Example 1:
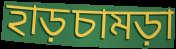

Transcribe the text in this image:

হাড়চামড়া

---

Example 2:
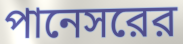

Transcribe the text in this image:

পানেসরের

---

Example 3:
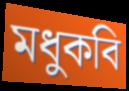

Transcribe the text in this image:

মধুকবি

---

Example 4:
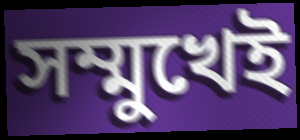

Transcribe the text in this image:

সম্মুখেই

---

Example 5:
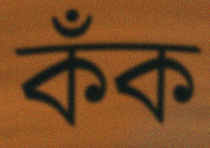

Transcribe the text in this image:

কঁক